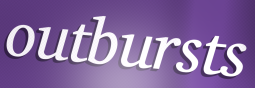
outbursts